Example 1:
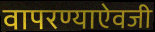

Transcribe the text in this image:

वापरण्याऐवजी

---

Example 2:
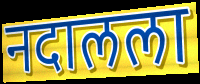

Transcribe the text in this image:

नदालला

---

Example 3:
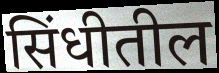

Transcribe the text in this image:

सिंधीतील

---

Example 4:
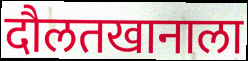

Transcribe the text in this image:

दौलतखानाला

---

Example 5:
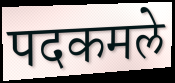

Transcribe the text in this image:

पदकमले